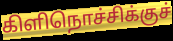
கிளிநொச்சிக்குச்